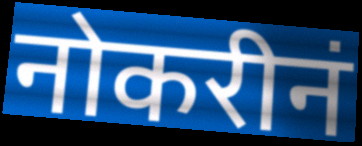
नोकरीनं